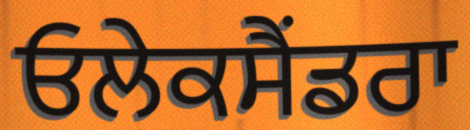
ਓਲੇਕਸੈਂਡਰਾ